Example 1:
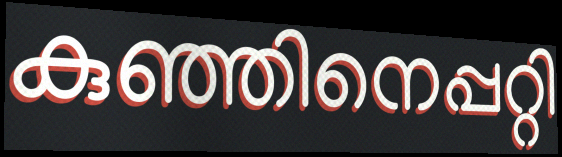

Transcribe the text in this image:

കുഞ്ഞിനെപ്പറ്റി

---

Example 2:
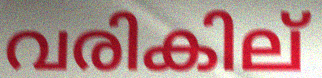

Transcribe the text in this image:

വരികില്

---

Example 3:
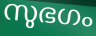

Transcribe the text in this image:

സുഭഗം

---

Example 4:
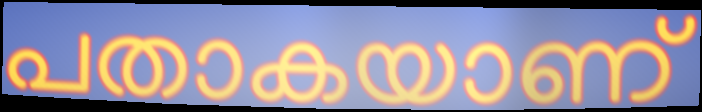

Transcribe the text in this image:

പതാകയാണ്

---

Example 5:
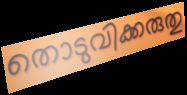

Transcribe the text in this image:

തൊടുവിക്കരുതു